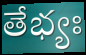
తేభ్యః